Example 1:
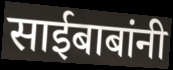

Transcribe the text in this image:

साईबाबांनी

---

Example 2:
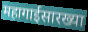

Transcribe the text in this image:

महागाईसारख्या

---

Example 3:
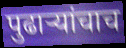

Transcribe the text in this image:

पुढाऱ्यांचाच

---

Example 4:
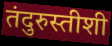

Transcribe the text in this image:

तंदुरुस्तीशी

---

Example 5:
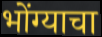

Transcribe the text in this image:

भोंग्याचा